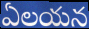
ఏలయన